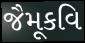
જૈમૂકવિ